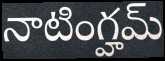
నాటింగ్హమ్